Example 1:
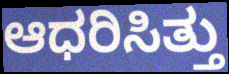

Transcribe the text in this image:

ಆಧರಿಸಿತ್ತು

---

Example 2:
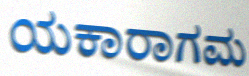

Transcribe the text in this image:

ಯಕಾರಾಗಮ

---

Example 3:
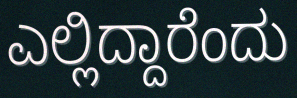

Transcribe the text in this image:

ಎಲ್ಲಿದ್ದಾರೆಂದು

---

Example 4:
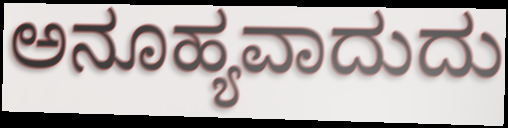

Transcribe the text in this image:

ಅನೂಹ್ಯವಾದುದು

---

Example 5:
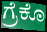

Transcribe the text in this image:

ಗ್ರೆಕೊ